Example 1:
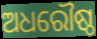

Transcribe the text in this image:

ଅଧରୌଷ୍ଠ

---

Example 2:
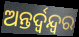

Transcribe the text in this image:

ଅନ୍ତର୍ଦ୍ୱନ୍ଦ୍ୱର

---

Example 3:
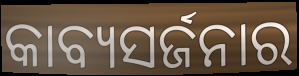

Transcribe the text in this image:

କାବ୍ୟସର୍ଜନାର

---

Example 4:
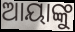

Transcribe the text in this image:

ଆୟାଙ୍କୁ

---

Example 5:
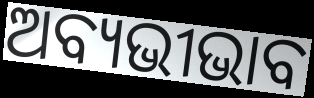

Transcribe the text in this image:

ଅବ୍ୟଭୀଭାବ